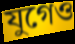
যুগেও